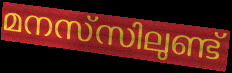
മനസ്‌സിലുണ്ട്